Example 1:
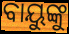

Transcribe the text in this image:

ବାୟୁଙ୍କୁ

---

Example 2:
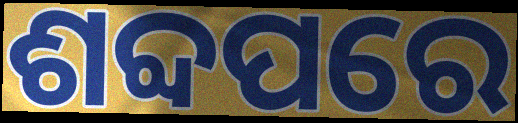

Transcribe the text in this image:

ଶବ୍ଦପରେ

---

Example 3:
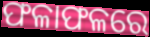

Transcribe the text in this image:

ଫଳାଫଳରେ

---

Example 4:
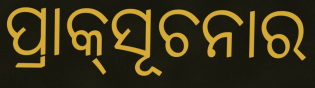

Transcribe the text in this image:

ପ୍ରାକ୍‌ସୂଚନାର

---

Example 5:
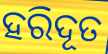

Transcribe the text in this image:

ହରିଦୂତ